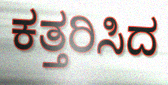
ಕತ್ತರಿಸಿದ